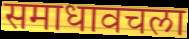
समाधावचला